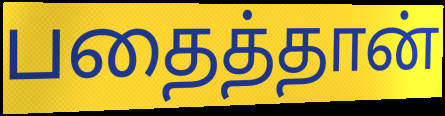
பதைத்தான்